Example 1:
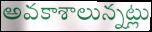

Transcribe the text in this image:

అవకాశాలున్నట్లు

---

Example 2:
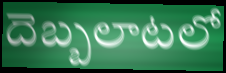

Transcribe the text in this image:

దెబ్బలాటలో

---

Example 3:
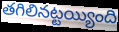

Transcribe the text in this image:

తగిలినట్టయ్యింది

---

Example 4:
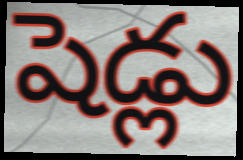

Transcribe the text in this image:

షెడ్లు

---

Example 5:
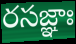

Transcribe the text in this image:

రసజ్ఞాః